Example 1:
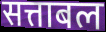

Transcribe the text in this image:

सत्ताबल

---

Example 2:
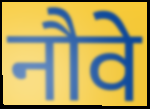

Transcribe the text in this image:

नौवे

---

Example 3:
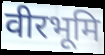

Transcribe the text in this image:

वीरभूमि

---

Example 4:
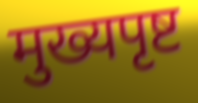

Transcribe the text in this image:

मुख्यपृष्ट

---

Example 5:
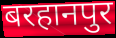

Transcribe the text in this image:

बरहानपुर